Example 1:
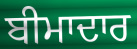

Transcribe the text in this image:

ਬੀਮਾਦਾਰ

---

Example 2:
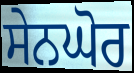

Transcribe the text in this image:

ਸੇਨਘੋਰ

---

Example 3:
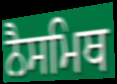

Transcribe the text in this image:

ਨੈਸਮਿਥ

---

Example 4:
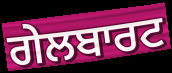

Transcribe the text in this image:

ਗੇਲਬਾਰਟ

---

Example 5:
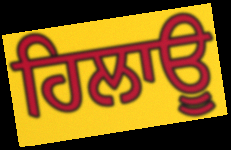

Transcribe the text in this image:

ਹਿਲਾਊ